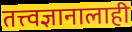
तत्त्वज्ञानालाही